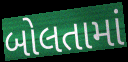
બોલતામાં